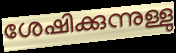
ശേഷിക്കുന്നുള്ളു